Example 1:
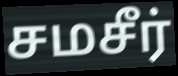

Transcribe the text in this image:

சமசீர்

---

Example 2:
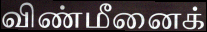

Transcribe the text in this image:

விண்மீனைக்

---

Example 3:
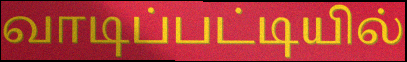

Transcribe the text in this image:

வாடிப்பட்டியில்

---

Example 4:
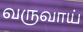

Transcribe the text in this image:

வருவாய்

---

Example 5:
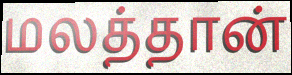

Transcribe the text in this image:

மலத்தான்